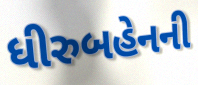
ધીરુબહેનની